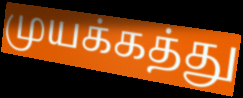
முயக்கத்து